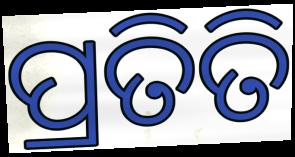
ପ୍ରତିତି